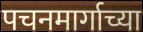
पचनमार्गाच्या